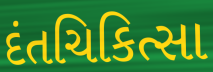
દંતચિકિત્સા